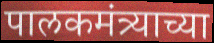
पालकमंत्र्याच्या